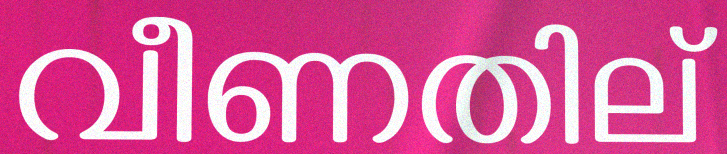
വീണതില്